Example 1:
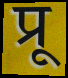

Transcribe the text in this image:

प्रू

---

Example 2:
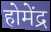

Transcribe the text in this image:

होमेंद्र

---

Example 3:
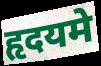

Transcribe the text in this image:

हृदयमे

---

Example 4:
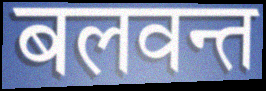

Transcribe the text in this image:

बलवन्त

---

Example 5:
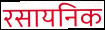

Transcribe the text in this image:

रसायनिक